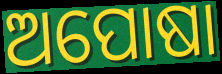
ଅପୋଷା